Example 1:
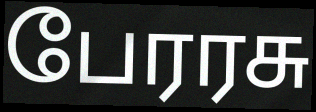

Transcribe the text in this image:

பேரரசு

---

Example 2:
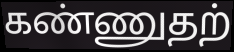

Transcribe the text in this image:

கண்ணுதற்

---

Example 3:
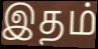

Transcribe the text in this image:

இதம்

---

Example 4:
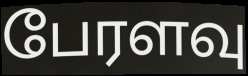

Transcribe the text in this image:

பேரளவு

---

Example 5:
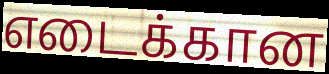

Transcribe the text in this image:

எடைக்கான